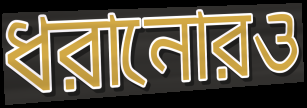
ধরানোরও